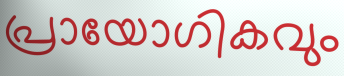
പ്രായോഗികവും